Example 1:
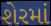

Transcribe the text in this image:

શેરમાં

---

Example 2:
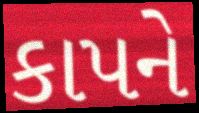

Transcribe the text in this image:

કાપને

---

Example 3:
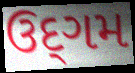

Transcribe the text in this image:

ઉદ્‌ગમ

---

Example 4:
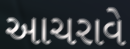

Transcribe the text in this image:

આચરાવે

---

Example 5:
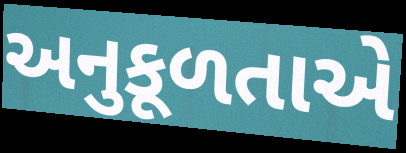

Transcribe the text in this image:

અનુકૂળતાએ